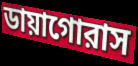
ডায়াগোরাস